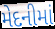
મેદનીમાં